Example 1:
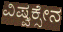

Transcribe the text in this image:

ವಿಷ್ವಕ್ಸೇನ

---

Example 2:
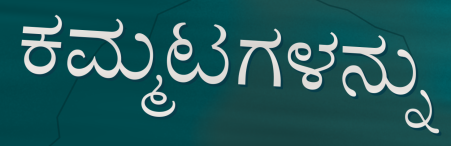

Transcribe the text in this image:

ಕಮ್ಮಟಗಳನ್ನು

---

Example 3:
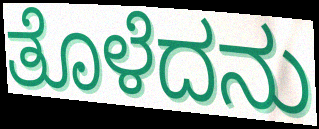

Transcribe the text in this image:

ತೊಳೆದನು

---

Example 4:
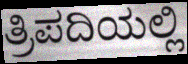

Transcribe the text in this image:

ತ್ರಿಪದಿಯಲ್ಲಿ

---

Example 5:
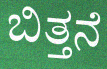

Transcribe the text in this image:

ಬಿತ್ತನೆ